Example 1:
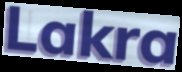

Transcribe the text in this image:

Lakra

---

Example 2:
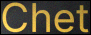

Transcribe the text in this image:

Chet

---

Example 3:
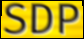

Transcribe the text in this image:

SDP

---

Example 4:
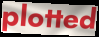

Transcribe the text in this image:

plotted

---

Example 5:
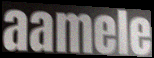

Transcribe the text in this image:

aamele